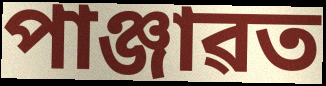
পাঞ্জাৱত